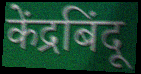
केंद्रबिंदू